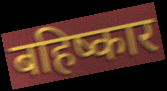
बहिष्कार